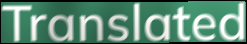
Translated